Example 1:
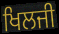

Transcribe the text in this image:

ਖਿਲਜੀ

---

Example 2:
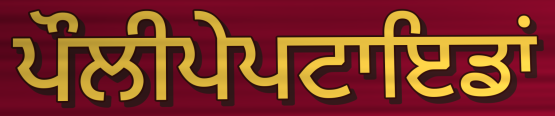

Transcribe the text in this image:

ਪੌਲੀਪੇਪਟਾਇਡਾਂ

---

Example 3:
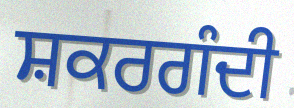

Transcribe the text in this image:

ਸ਼ਕਰਗੰਦੀ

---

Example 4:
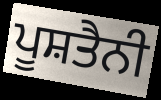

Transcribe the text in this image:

ਪੂਸ਼ਤੈਨੀ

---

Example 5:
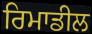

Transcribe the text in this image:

ਰਿਮਾਡੀਲ